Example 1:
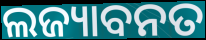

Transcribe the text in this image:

ଲଜ୍ୟାବନତ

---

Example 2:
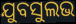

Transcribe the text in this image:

ଯୁବସୁଲଭ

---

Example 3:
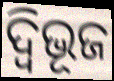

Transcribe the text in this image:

ଦ୍ବିଭୂଜ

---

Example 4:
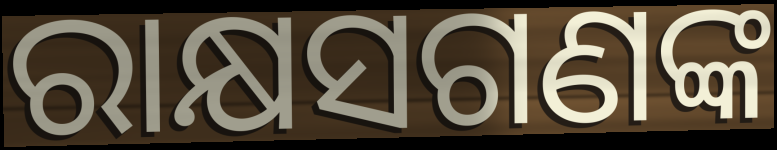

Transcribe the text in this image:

ରାକ୍ଷସଗଣଙ୍କ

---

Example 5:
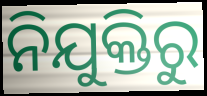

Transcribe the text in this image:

ନିଯୁକ୍ତିରୁ